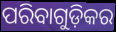
ପରିବାଗୁଡ଼ିକର